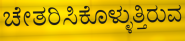
ಚೇತರಿಸಿಕೊಳ್ಳುತ್ತಿರುವ